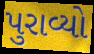
પુરાવ્યો